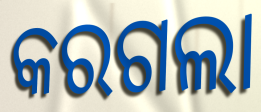
କରଗଲା